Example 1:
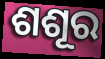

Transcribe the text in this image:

ଶଶୂର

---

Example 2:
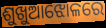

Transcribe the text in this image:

ଶୁଖୁଆଝୋଳରେ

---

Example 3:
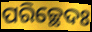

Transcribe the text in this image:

ପରିଚ୍ଛେଦଃ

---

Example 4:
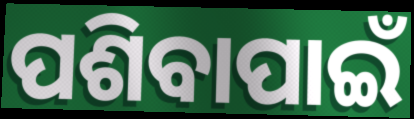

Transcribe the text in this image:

ପଶିବାପାଇଁ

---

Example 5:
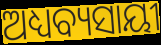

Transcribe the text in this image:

ଅଧ୍ୟବ୍ୟସାୟୀ